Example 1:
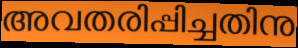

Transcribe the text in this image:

അവതരിപ്പിച്ചതിനു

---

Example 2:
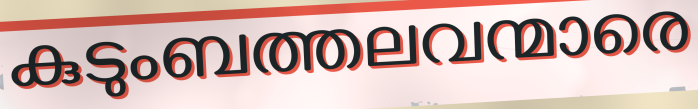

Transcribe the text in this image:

കുടുംബത്തലവന്മാരെ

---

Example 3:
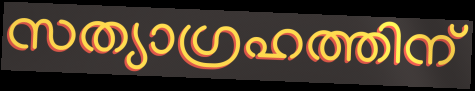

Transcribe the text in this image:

സത്യാഗ്രഹത്തിന്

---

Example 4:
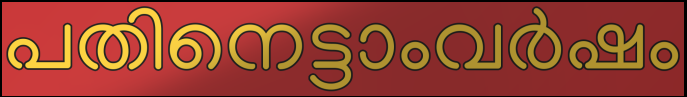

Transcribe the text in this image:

പതിനെട്ടാംവർഷം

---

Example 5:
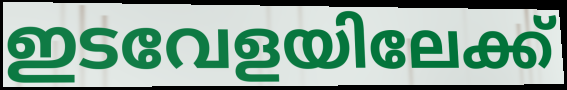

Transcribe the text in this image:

ഇടവേളയിലേക്ക്